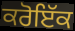
ਕਰੋਇੱਕ